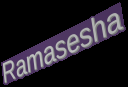
Ramasesha